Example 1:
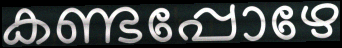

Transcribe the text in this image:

കണ്ടപ്പോഴേ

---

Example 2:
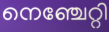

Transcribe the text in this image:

നെഞ്ചേറ്റി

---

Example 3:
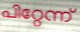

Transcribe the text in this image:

പിറ്റേന്ന്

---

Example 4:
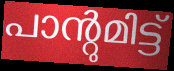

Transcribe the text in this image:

പാന്റുമിട്ട്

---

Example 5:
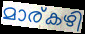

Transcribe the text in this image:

മാര്കഴി